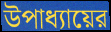
উপাধ্যায়ের